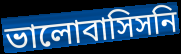
ভালোবাসিসনি